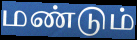
மண்டும்